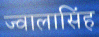
ज्वालासिंह